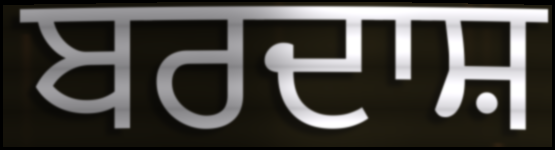
ਬਰਦਾਸ਼